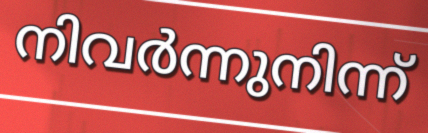
നിവർന്നുനിന്ന്